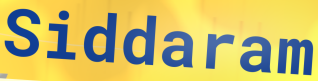
Siddaram